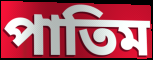
পাতিম